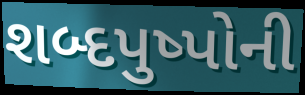
શબ્દપુષ્પોની